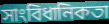
সাংবিধানিকতা